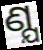
ଣ୍ଯ